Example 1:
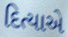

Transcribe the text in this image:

દિત્યાએ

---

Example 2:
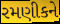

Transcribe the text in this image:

રમણીકને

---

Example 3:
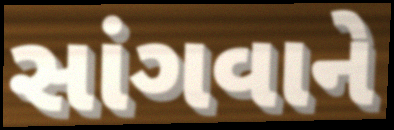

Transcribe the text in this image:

સાંગવાને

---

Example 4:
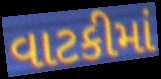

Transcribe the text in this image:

વાટકીમાં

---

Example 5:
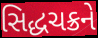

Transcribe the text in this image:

સિદ્ધચક્રને